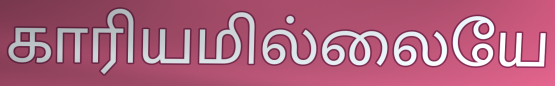
காரியமில்லையே